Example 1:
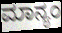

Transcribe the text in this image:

ಮಾನ್ಯಂ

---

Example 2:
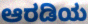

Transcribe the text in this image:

ಆರಡಿಯ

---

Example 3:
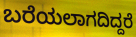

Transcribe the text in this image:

ಬರೆಯಲಾಗದಿದ್ದರೆ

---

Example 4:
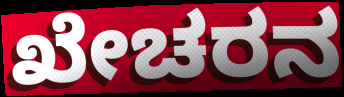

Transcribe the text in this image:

ಖೇಚರನ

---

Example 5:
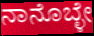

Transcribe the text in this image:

ನಾನೊಬ್ಳೇ